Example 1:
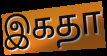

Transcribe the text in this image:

இகதா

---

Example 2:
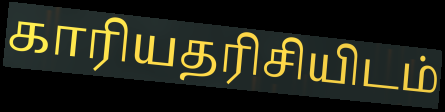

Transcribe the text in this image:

காரியதரிசியிடம்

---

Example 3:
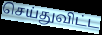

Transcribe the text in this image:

செய்துவிட்ட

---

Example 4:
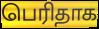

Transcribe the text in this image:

பெரிதாக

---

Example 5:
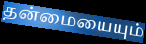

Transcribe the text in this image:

தன்மையையும்